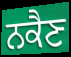
ਨਕੈਣ